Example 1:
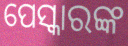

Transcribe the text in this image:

ପେସ୍କାରଙ୍କ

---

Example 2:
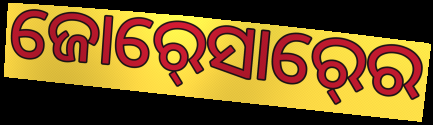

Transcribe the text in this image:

ଜୋର୍‍ସୋର୍‍ରେ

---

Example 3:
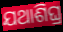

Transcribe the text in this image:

ଯଥାଶିଘ୍ର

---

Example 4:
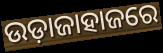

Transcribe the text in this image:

ଉଡ଼ାଜାହାଜରେ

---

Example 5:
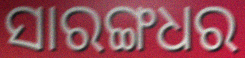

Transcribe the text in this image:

ସାରଙ୍ଗଧର